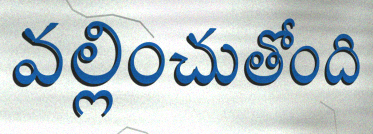
వల్లించుతోంది